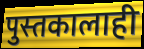
पुस्तकालाही